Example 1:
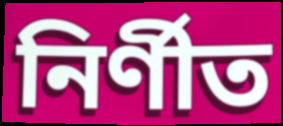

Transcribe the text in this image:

নির্ণীত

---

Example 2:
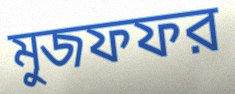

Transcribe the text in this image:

মুজফফর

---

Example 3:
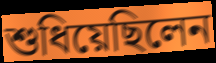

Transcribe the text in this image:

শুধিয়েছিলেন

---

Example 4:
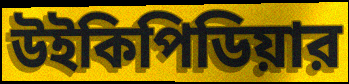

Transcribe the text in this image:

উইকিপিডিয়ার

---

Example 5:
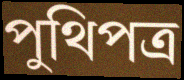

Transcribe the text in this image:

পুথিপত্র